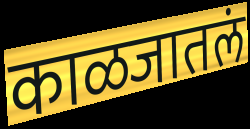
काळजातलं